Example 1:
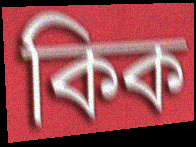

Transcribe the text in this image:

কিক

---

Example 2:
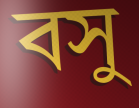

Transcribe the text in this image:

বসু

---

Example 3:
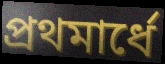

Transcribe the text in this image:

প্রথমার্ধে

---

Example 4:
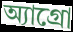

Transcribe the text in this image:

অ্যাগ্রো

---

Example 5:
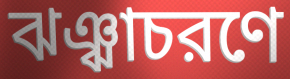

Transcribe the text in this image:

ঝঞ্ঝাচরণে